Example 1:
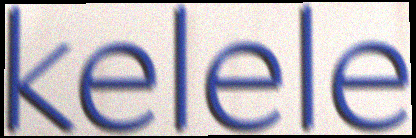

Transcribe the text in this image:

kelele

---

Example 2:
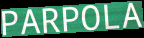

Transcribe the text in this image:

PARPOLA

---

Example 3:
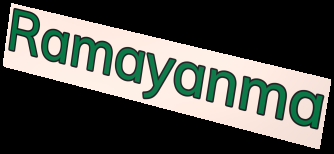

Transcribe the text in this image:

Ramayanma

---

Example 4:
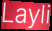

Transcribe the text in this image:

Layli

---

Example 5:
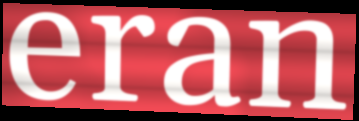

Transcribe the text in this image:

eran